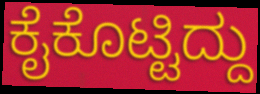
ಕೈಕೊಟ್ಟಿದ್ದು